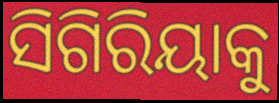
ସିଗିରିୟାକୁ